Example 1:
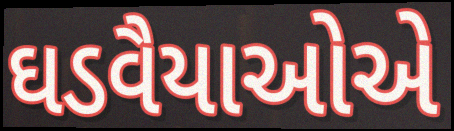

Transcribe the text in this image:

ઘડવૈયાઓએ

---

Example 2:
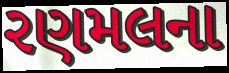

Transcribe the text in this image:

રણમલના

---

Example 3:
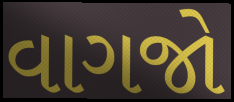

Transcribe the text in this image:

વાગજો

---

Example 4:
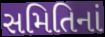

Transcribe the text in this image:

સમિતિનાં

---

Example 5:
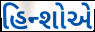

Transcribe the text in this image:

હિન્શોએ